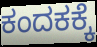
ಕಂದಕಕ್ಕೆ